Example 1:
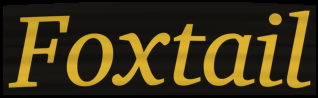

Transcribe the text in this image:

Foxtail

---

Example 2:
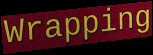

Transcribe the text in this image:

Wrapping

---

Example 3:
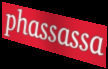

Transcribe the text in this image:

phassassa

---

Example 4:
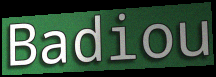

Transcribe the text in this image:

Badiou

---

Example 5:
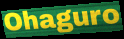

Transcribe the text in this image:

Ohaguro